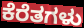
ಕೆರೆತಗಳು